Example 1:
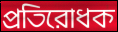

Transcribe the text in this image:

প্রতিরোধক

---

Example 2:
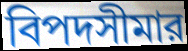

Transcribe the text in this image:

বিপদসীমার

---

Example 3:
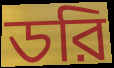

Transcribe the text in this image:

ডরি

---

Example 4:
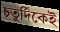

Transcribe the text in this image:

চতুর্দিকেই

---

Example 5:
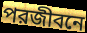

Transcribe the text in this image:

পরজীবনে